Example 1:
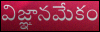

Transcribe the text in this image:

విజ్ఞానమేకం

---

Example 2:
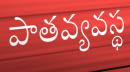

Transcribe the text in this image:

పాతవ్యవస్థ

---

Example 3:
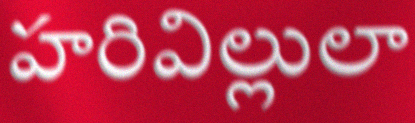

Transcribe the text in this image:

హరివిల్లులా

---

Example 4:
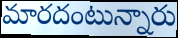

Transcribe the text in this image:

మారదంటున్నారు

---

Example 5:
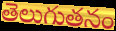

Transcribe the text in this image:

తెలుగుతనం